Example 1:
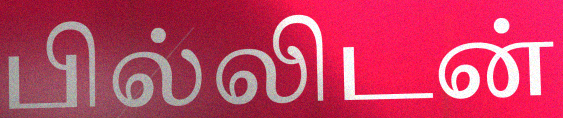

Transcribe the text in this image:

பில்லிடன்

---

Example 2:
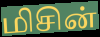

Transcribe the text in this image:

மிசின்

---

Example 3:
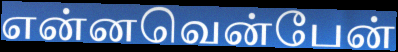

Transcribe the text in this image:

என்னவென்பேன்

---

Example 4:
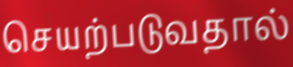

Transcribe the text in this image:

செயற்படுவதால்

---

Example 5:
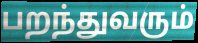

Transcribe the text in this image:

பறந்துவரும்